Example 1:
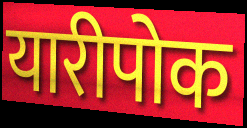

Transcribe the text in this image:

यारीपोक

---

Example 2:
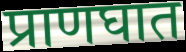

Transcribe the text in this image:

प्राणघात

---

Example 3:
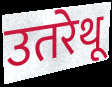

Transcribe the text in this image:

उतरेथू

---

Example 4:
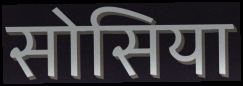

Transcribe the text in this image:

सोसिया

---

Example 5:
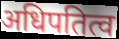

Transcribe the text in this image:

अधिपतित्व